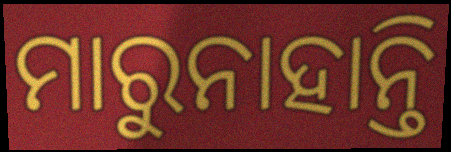
ମାରୁନାହାନ୍ତି